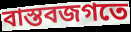
বাস্তবজগতে